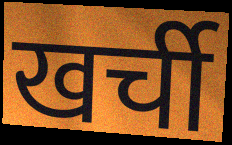
खर्ची